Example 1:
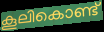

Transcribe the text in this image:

കൂലികൊണ്ട്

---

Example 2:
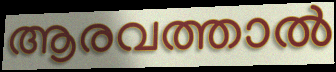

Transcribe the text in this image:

ആരവത്താൽ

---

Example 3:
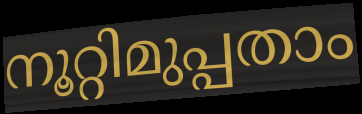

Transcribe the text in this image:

നൂറ്റിമുപ്പതാം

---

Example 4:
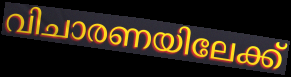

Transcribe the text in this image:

വിചാരണയിലേക്ക്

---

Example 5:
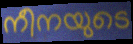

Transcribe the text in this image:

നീനയുടെ